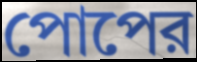
পোপের